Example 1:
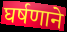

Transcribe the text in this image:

घर्षणाने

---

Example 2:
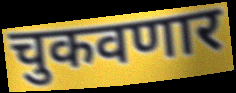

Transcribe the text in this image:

चुकवणार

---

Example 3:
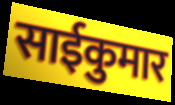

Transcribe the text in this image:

साईकुमार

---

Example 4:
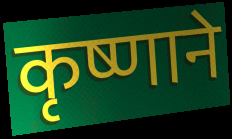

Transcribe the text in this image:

कृष्णाने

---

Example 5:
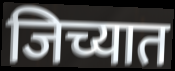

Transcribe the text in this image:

जिच्यात